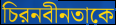
চিরনবীনতাকে